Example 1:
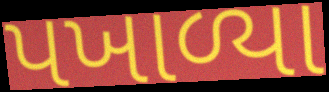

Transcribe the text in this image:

પખાળ્યા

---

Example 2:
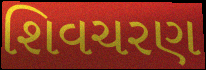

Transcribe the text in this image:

શિવચરણ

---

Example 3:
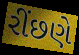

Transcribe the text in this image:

રીંછણે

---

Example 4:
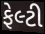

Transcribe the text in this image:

ફેલ્ટી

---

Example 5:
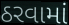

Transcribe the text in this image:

ઠરવામાં